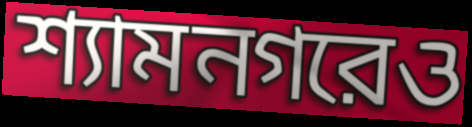
শ্যামনগরেও